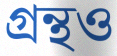
গ্ৰন্থও